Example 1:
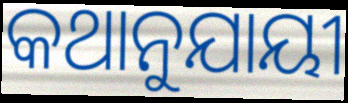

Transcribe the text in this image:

କଥାନୁଯାୟୀ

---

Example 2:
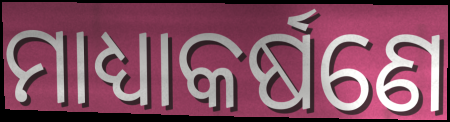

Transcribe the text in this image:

ମାଧ୍ୟାକର୍ଷଣେ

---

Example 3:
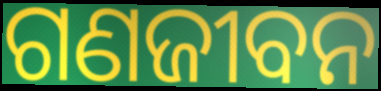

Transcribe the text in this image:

ଗଣଜୀବନ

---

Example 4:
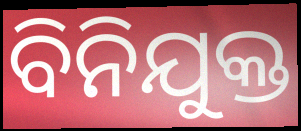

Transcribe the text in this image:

ବିନିଯୁକ୍ତ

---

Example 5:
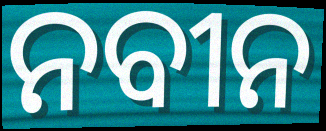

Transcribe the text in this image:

ନବୀନ